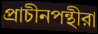
প্রাচীনপন্থীরা